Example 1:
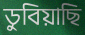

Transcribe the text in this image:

ডুবিয়াছি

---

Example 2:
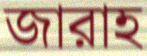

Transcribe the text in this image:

জারাহ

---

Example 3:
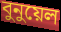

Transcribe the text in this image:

বুনুয়েল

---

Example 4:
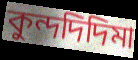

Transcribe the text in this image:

কুন্দদিদিমা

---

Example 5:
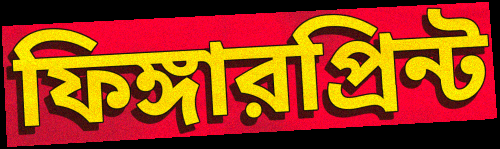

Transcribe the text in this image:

ফিঙ্গারপ্রিন্ট